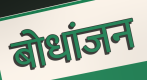
बोधांजन